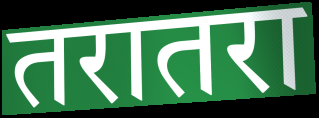
तरातरा